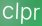
clpr